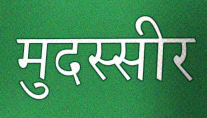
मुदस्सीर